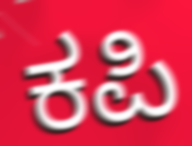
ಕಪಿ